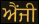
ਐਂਜੀ